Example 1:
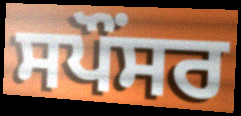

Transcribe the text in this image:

ਸਪੌਂਸਰ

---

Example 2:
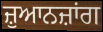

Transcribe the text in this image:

ਜ਼ੁਆਨਜ਼ਾਂਗ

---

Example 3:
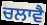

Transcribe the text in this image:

ਚਲਾਵੈ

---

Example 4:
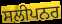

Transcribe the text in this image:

ਸਲੀਪਨਰ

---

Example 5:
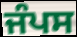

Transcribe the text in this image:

ਜੰਪਸ